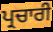
ਪ੍ਰਚਾਰੀ